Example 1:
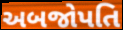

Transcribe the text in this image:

અબજોપતિ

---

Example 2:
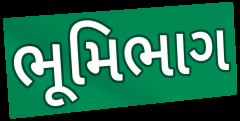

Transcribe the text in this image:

ભૂમિભાગ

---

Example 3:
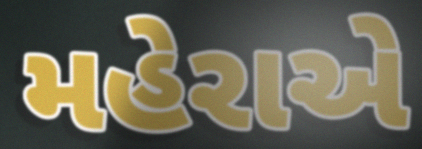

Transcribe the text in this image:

મહેરાએ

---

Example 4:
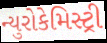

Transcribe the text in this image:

ન્યુરોકેમિસ્ટ્રી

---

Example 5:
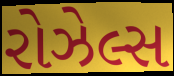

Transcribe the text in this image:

રોઝેલ્સ